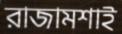
রাজামশাই